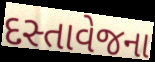
દસ્તાવેજના